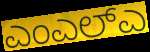
ಎಂಎಲ್ಎ